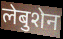
लेबुशेन